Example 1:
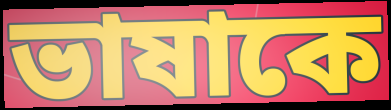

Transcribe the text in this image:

ভাষাকে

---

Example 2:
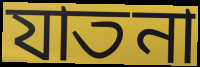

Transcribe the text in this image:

যাতনা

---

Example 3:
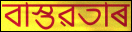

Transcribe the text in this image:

বাস্তৱতাৰ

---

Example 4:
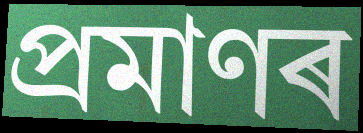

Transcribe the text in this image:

প্ৰমাণৰ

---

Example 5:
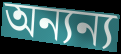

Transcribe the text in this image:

অন্যন্য